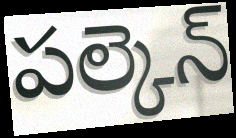
పల్కెన్